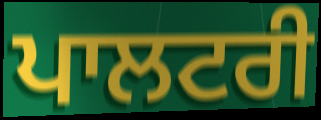
ਪਾਲਟਰੀ